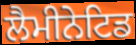
ਲੈਮੀਨੇਟਿਡ